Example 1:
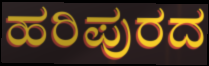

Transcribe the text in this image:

ಹರಿಪುರದ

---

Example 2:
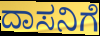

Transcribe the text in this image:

ದಾಸನಿಗೆ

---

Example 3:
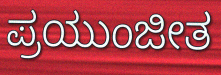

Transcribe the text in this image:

ಪ್ರಯುಂಜೀತ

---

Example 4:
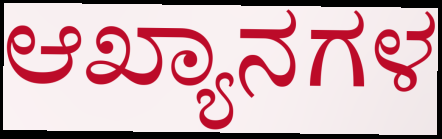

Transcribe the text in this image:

ಆಖ್ಯಾನಗಳ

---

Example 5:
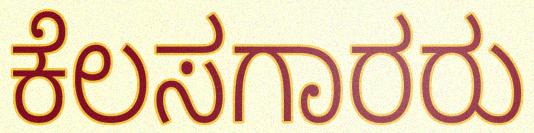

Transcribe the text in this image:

ಕೆಲಸಗಾರರು